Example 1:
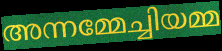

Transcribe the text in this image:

അന്നമ്മേച്ചിയമ്മ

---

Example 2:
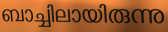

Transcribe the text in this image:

ബാച്ചിലായിരുന്നു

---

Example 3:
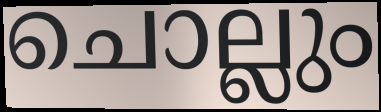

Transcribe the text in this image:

ചൊല്ലും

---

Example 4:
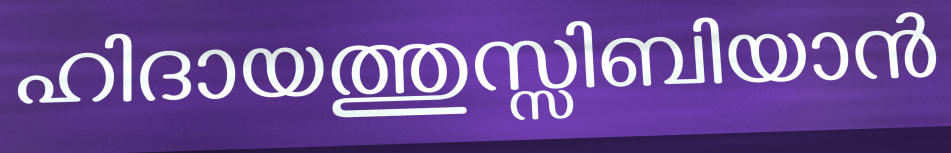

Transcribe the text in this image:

ഹിദായത്തുസ്സിബിയാൻ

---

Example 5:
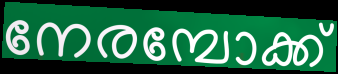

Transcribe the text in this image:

നേരമ്പോക്ക്